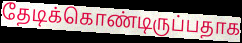
தேடிக்கொண்டிருப்பதாக